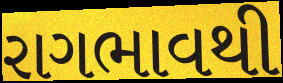
રાગભાવથી